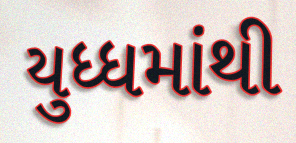
યુધ્ધમાંથી